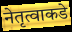
नेतृत्वाकडे